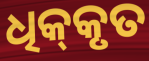
ଧିକ୍‌କୃତ